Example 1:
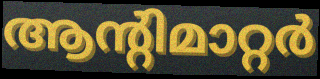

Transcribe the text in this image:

ആന്റിമാറ്റർ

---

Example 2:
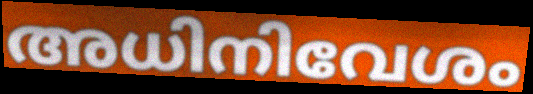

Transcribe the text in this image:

അധിനിവേശം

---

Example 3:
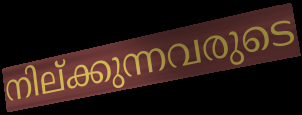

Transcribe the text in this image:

നില്ക്കുന്നവരുടെ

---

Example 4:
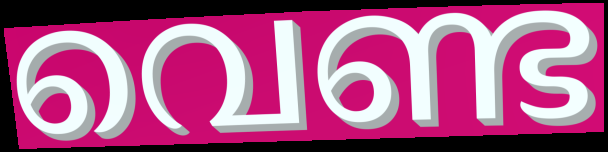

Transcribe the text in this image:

വെണ്ട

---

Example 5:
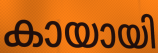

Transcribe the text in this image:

കായായി